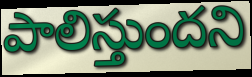
పాలిస్తుందని